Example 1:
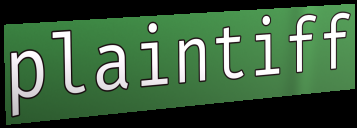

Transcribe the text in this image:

plaintiff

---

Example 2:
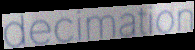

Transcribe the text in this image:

decimation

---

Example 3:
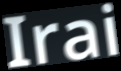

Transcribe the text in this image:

Irai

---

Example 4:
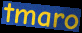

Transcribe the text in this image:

tmaro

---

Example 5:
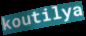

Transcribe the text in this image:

koutilya